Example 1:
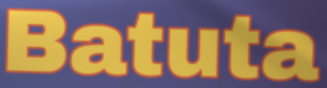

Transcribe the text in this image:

Batuta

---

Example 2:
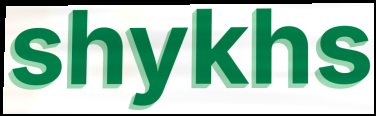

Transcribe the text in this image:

shykhs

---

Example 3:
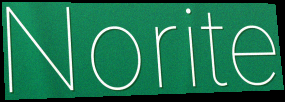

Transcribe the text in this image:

Norite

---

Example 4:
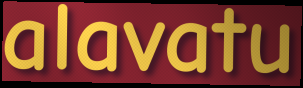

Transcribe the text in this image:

alavatu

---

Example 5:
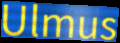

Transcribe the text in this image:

Ulmus